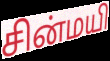
சின்மயி